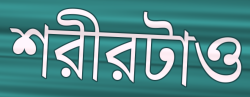
শরীরটাও